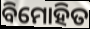
ବିମୋହିତ